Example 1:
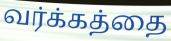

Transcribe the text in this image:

வர்க்கத்தை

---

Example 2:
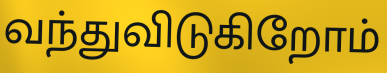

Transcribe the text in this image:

வந்துவிடுகிறோம்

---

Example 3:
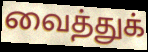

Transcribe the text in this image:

வைத்துக்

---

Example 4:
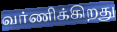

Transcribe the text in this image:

வர்ணிக்கிறது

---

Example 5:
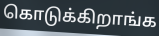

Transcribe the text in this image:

கொடுக்கிறாங்க